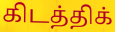
கிடத்திக்